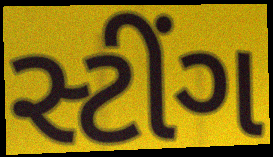
સ્ટીંગ